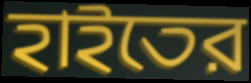
হাইতের